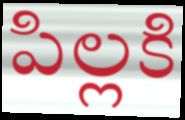
పిల్లకి